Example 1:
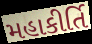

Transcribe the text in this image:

મહાકીર્તિ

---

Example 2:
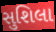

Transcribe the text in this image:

સુશિલા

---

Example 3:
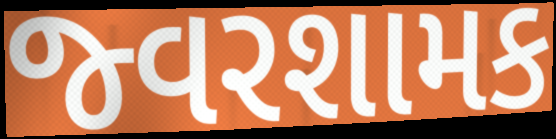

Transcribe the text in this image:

જ્વરશામક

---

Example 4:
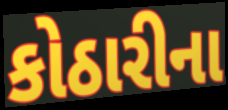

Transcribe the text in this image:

કોઠારીના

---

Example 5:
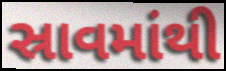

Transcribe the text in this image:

સ્રાવમાંથી